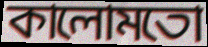
কালোমতো